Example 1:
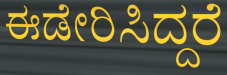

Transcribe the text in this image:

ಈಡೇರಿಸಿದ್ದರೆ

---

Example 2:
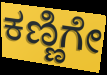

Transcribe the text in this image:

ಕಣ್ಣಿಗೇ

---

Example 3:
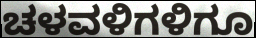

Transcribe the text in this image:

ಚಳವಳಿಗಳಿಗೂ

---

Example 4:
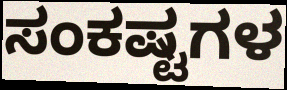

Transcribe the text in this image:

ಸಂಕಷ್ಟಗಳ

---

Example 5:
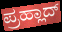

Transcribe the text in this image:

ಪ್ರಹ್ಲಾದ್